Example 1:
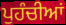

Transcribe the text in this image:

ਪੁਹੰਚੀਆਂ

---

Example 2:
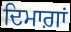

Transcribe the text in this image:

ਦਿਮਾਗ਼ਾਂ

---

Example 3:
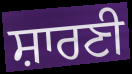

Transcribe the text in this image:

ਸ਼ਾਰਣੀ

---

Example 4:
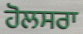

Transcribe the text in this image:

ਹੋਲਸਰਾ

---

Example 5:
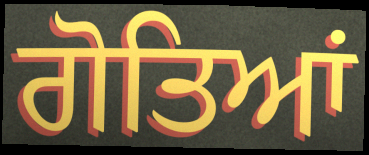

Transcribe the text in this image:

ਗੋਤਿਆਂ